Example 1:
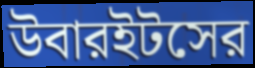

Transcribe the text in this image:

উবারইটসের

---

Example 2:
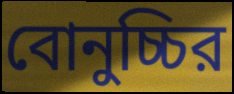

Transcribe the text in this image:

বোনুচ্চির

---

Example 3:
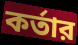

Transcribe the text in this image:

কর্তার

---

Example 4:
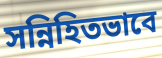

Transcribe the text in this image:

সন্নিহিতভাবে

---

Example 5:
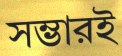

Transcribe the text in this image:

সম্ভারই